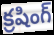
క్రషింగ్